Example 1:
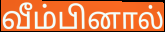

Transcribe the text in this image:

வீம்பினால்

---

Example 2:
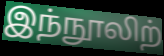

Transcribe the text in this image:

இந்நூலிற்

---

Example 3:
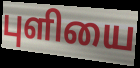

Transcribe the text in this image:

புளியை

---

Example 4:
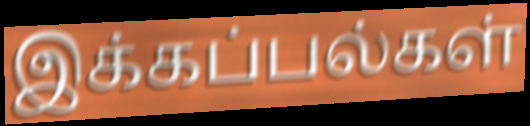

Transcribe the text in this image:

இக்கப்பல்கள்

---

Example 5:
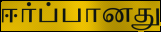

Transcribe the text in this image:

ஈர்ப்பானது